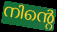
നിന്റെ